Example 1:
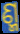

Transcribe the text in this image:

ଣ୍ମ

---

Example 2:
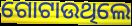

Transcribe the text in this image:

ଗୋଟାଉଥିଲେ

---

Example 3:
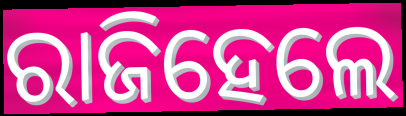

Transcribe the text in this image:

ରାଜିହେଲେ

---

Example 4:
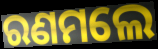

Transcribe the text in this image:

ରଣମଲେ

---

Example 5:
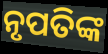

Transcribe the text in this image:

ନୃପତିଙ୍କ